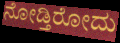
ನೋಡ್ತಿರೋದು